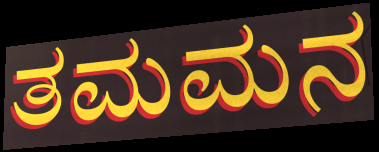
ತಮಮನ